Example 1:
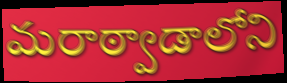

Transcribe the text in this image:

మరాఠ్వాడాలోని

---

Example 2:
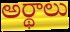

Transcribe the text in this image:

అర్థాలు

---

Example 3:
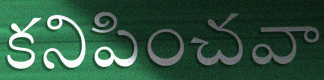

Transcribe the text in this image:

కనిపించవా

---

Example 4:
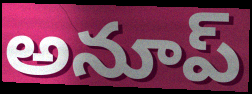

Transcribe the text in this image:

అనూప్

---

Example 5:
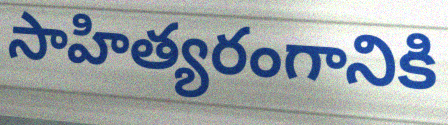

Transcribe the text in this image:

సాహిత్యరంగానికి